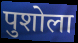
पुशोला